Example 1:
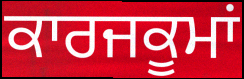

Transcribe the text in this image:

ਕਾਰਜਕੂਮਾਂ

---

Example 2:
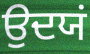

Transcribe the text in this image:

ਉਦਯਂ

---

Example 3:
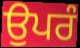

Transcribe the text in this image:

ਉਪਰੰ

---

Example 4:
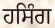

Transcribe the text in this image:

ਹਸਿੰਗ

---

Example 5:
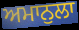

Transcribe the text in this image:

ਅਮਾਨੁਲਾ